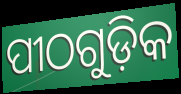
ପୀଠଗୁଡ଼ିକ